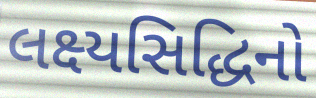
લક્ષ્યસિદ્ધિનો